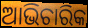
ଆଭିଚାରିକ